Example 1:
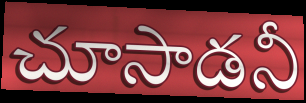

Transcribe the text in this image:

చూసాడనీ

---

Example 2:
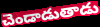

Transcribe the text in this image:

చెండాడుతాడు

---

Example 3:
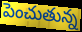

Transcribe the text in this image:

పెంచుతున్న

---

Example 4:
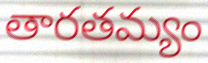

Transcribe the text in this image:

తారతమ్యం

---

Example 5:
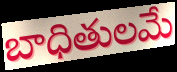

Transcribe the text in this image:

బాధితులమే